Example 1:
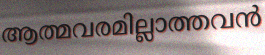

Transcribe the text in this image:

ആത്മവരമില്ലാത്തവൻ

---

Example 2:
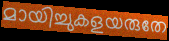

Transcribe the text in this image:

മായിച്ചുകളയരുതേ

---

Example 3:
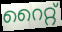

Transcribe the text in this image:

റൈറ്റ്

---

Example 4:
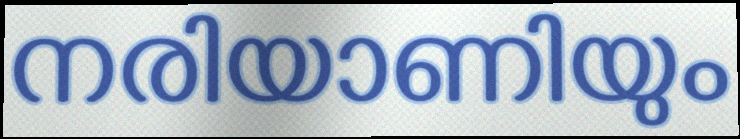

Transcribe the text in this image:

നരിയാണിയും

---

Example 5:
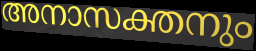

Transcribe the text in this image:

അനാസക്തനും